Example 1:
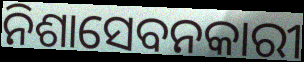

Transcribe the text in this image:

ନିଶାସେବନକାରୀ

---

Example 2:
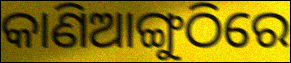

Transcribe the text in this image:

କାଣିଆଙ୍ଗୁଠିରେ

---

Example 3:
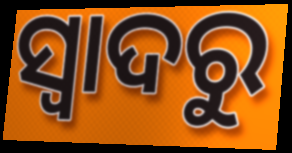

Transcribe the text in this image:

ସ୍ୱାଦରୁ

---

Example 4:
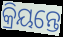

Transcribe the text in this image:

କ୍ରିୟନ୍ତେ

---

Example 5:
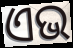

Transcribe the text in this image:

ଏଭ